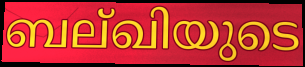
ബല്ഖിയുടെ